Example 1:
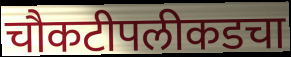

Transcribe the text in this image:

चौकटीपलीकडचा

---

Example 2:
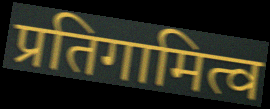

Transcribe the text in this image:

प्रतिगामित्व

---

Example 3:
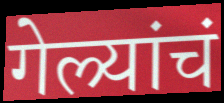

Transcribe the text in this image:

गेल्यांचं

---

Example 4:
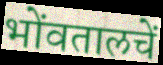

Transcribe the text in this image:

भोंवतालचें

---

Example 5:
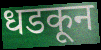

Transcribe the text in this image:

धडकून